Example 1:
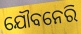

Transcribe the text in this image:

ଯୌବନେରି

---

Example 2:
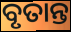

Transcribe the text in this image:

ବୃତାନ୍ତ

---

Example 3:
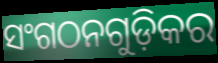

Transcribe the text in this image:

ସଂଗଠନଗୁଡ଼ିକର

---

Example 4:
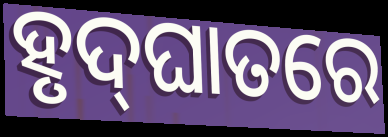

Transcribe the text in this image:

ହୃଦ୍‌ଘାତରେ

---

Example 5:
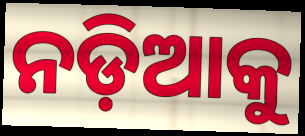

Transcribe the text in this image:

ନଡ଼ିଆକୁ